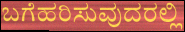
ಬಗೆಹರಿಸುವುದರಲ್ಲಿ